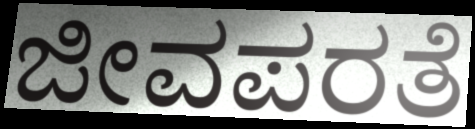
ಜೀವಪರತೆ